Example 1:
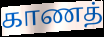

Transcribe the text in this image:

காணத்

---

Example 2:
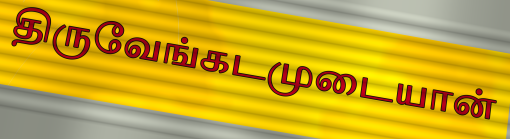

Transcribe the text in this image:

திருவேங்கடமுடையான்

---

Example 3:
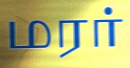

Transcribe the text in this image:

மரர்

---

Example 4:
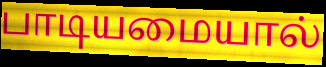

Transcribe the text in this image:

பாடியமையால்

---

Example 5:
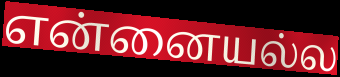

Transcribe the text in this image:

என்னையல்ல